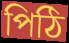
পিঠি